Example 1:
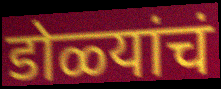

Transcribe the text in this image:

डोळ्यांचं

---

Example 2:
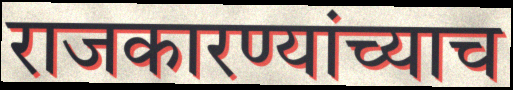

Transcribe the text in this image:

राजकारण्यांच्याच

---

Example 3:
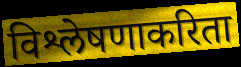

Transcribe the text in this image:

विश्लेषणाकरिता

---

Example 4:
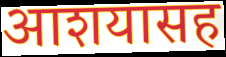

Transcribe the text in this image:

आशयासह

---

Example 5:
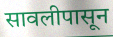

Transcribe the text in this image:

सावलीपासून